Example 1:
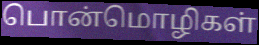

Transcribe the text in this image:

பொன்மொழிகள்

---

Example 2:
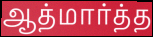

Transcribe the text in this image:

ஆத்மார்த்த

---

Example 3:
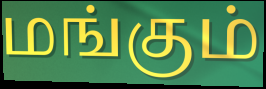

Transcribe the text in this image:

மங்கும்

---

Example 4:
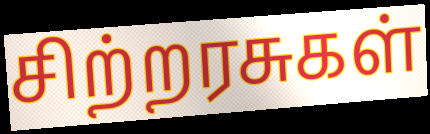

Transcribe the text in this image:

சிற்றரசுகள்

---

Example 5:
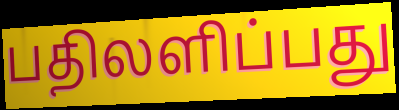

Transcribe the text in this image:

பதிலளிப்பது